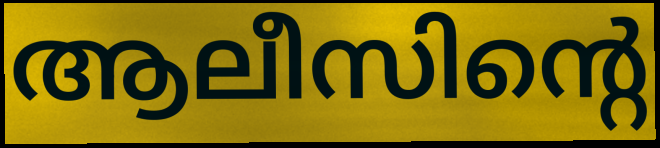
ആലീസിന്റെ